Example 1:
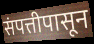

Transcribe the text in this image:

संपत्तीपासून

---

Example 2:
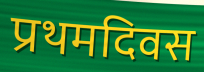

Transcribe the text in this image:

प्रथमदिवस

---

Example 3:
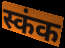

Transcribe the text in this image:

स्कंक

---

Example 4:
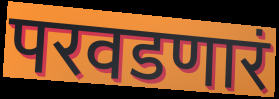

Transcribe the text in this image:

परवडणारं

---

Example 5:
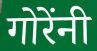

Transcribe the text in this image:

गोरेंनी